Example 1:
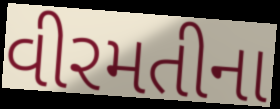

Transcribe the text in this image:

વીરમતીના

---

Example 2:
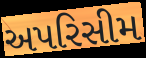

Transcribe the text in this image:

અપરિસીમ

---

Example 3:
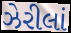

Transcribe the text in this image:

ઝેરીલાં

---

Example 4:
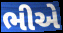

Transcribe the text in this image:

ભીએ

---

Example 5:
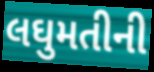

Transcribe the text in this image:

લઘુમતીની